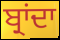
ਬ੍ਰਾਂਦਾ